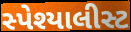
સ્પેશ્યાલીસ્ટ